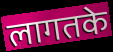
लागतके